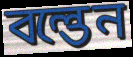
বল্তেন